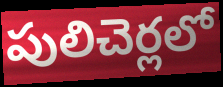
పులిచెర్లలో